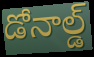
డోనాల్డ్